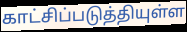
காட்சிப்படுத்தியுள்ள